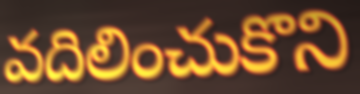
వదిలించుకొని